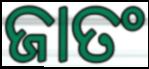
ଜାତଂ